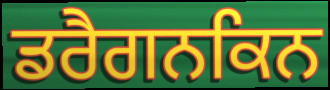
ਡਰੈਗਨਕਿਨ